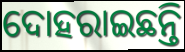
ଦୋହରାଇଛନ୍ତି